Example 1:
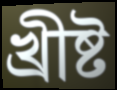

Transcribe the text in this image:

খ্রীষ্ট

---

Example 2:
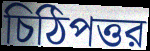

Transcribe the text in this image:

চিঠিপত্তর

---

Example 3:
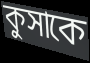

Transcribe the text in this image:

কুসাকে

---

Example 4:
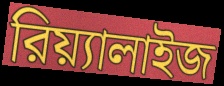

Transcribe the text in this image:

রিয়্যালাইজ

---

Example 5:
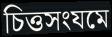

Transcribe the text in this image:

চিত্তসংযমে